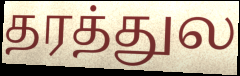
தரத்துல